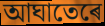
আঘাতেৰে